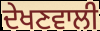
ਦੇਖਣਵਾਲੀ